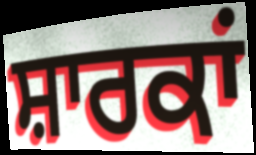
ਸ਼ਾਰਕਾਂ